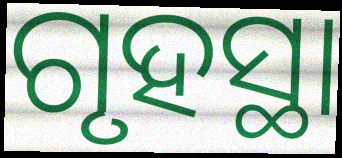
ଗୃହସ୍ଥା